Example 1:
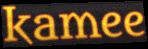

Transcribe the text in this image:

kamee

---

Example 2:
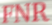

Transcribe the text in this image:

FNR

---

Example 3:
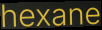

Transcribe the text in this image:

hexane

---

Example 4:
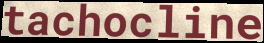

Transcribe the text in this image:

tachocline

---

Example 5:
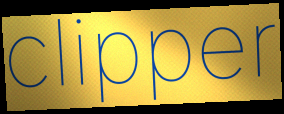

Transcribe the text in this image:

clipper